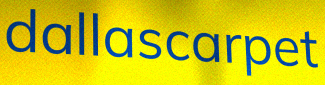
dallascarpet